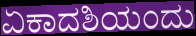
ಏಕಾದಶಿಯಂದು